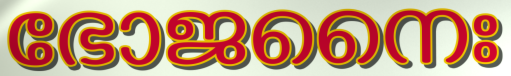
ഭോജനൈഃ